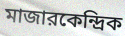
মাজারকেন্দ্রিক